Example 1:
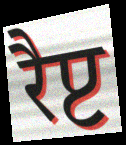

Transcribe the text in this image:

रैप्ट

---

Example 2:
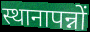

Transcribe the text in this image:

स्थानापन्नों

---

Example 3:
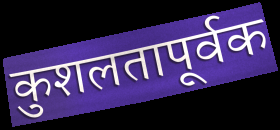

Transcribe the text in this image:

कुशलतापूर्वक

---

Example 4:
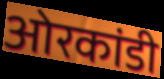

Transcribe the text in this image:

ओरकांडी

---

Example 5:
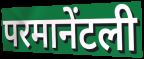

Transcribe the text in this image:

परमानेंटली